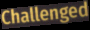
Challenged